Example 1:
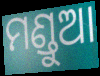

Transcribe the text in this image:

ମଣ୍ଡୁଆ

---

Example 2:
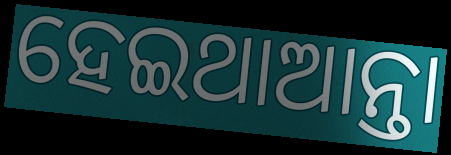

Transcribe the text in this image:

ହେଇଥାଆନ୍ତା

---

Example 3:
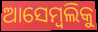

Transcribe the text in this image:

ଆସେମ୍ବଲିକୁ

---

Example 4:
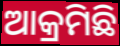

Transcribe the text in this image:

ଆକ୍ରମିଛି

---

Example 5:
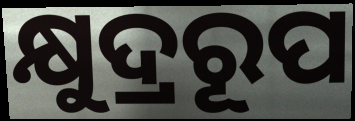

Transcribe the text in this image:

କ୍ଷୁଦ୍ରରୂପ